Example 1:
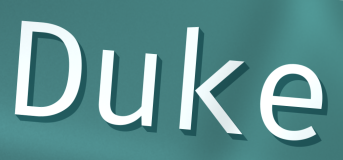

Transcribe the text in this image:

Duke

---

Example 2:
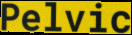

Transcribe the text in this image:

Pelvic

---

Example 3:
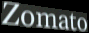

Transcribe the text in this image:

Zomato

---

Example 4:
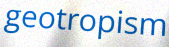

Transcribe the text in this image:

geotropism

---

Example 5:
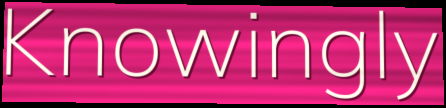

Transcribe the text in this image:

Knowingly